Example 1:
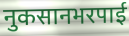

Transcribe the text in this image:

नुकसानभरपाई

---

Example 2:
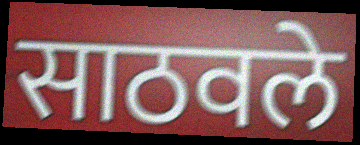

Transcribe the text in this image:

साठवले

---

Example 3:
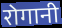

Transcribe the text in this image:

रोगानी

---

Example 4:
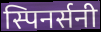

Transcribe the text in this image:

स्पिनर्सनी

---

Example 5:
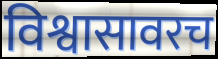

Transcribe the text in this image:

विश्वासावरच